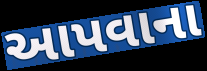
આપવાના